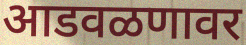
आडवळणावर